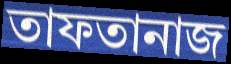
তাফতানাজ